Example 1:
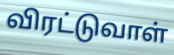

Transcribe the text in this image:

விரட்டுவாள்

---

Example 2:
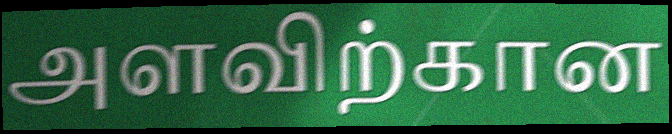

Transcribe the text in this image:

அளவிற்கான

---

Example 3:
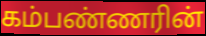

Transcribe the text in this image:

கம்பண்ணரின்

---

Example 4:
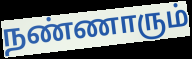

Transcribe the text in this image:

நண்ணாரும்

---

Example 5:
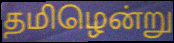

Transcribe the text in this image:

தமிழென்று